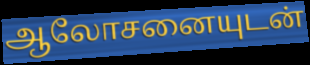
ஆலோசனையுடன்